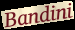
Bandini